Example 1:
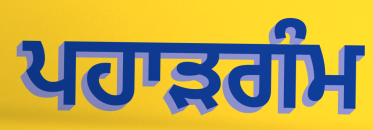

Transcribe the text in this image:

ਪਹਾੜਗੰਮ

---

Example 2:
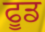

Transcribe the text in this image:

ਫੂਡ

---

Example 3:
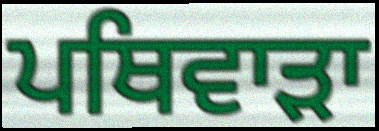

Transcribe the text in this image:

ਪਥਿਵਾੜਾ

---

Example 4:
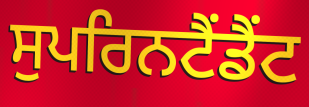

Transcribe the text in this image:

ਸੁਪਰਿਨਟੈਂਡੈਂਟ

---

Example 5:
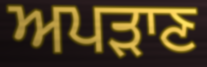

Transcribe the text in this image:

ਅਪੜਾਣ